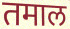
तमाल